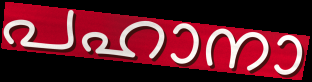
പഹാനാ